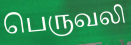
பெருவலி